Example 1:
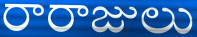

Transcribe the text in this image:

రారాజులు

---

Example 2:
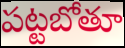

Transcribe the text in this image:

పట్టబోతూ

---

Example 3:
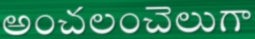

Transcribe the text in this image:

అంచలంచెలుగా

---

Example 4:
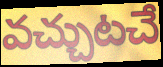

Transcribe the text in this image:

వచ్చుటచే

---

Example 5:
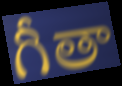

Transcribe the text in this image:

గీతా